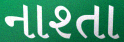
નાશ્તા